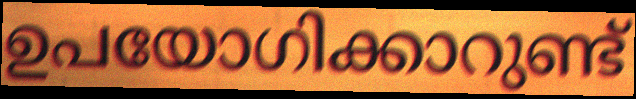
ഉപയോഗിക്കാറുണ്ട്